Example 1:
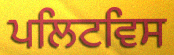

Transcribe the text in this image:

ਪਲਿਟਵਿਸ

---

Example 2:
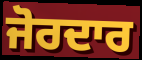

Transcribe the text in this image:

ਜੋਰਦਾਰ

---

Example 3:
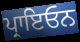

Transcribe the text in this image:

ਪ੍ਰਾਇਓਨ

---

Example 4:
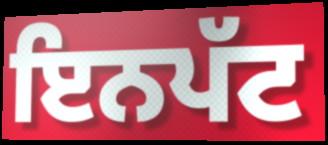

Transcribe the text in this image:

ਇਨਪੱਟ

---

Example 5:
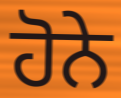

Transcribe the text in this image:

ਹੋਨੇ